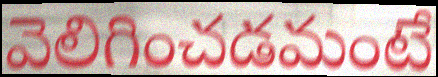
వెలిగించడమంటే